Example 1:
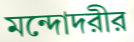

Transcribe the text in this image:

মন্দোদরীর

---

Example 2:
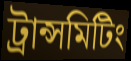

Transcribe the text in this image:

ট্রান্সমিটিং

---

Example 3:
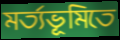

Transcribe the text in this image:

মর্ত্যভূমিতে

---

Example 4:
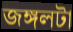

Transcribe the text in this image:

জঙ্গলটা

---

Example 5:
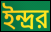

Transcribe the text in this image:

ইন্দ্রর